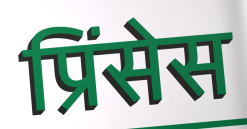
प्रिंसेस